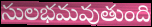
సులభమవుతుంది